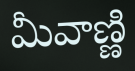
మీవాణ్ణి